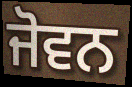
ਜੋਵਨ